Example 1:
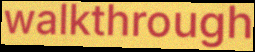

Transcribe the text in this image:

walkthrough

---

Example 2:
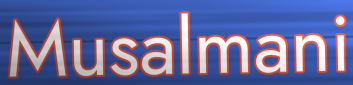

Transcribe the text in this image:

Musalmani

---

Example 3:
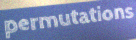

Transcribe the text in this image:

permutations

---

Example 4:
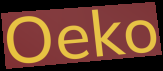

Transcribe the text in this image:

Oeko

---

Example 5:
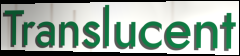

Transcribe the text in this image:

Translucent